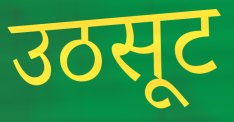
उठसूट